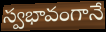
స్వభావంగానే